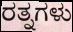
ರತ್ನಗಳು